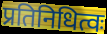
प्रतिनिधित्वः